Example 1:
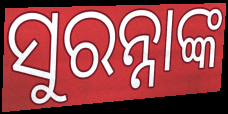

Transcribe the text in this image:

ସୁରନ୍ନାଙ୍କ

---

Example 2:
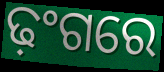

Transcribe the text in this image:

ଢ଼ଂଗରେ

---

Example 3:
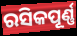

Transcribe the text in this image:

ରସିକପୂର୍ଣ୍ଣ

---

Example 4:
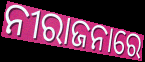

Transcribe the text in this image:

ନୀରାଜନାରେ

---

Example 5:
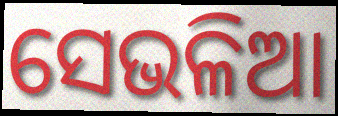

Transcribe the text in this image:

ସେଭଳିଆ